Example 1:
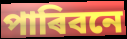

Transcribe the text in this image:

পাৰিবনে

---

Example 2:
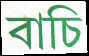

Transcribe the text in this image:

বাচি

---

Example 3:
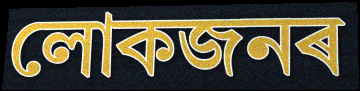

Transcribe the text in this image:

লোকজনৰ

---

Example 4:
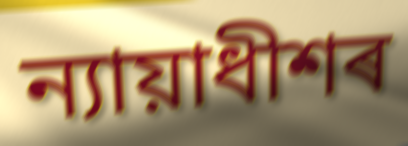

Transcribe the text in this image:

ন্যায়াধীশৰ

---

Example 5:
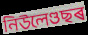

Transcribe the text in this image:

নিউলেণ্ডছৰ